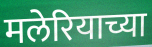
मलेरियाच्या